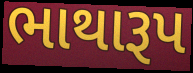
ભાથારૂપ